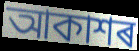
আকাশৰ